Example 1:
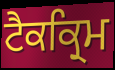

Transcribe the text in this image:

ਟੈਕਕ੍ਰਿਮ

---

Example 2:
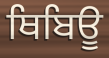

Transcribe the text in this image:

ਥਿਬਿਊ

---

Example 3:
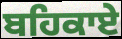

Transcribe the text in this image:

ਬਹਿਕਾਏ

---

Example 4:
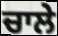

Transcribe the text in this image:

ਚਾਲੇ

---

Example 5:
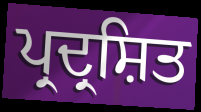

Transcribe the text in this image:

ਪ੍ਰਦ੍ਰਸ਼ਿਤ